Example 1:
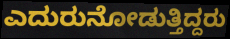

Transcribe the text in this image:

ಎದುರುನೋಡುತ್ತಿದ್ದರು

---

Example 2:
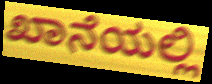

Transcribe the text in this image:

ಖಾನೆಯಲ್ಲಿ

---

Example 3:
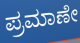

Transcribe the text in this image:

ಪ್ರಮಾಣೇ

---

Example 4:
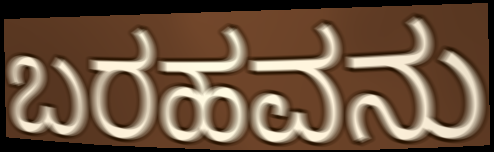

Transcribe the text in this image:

ಬರಹವನು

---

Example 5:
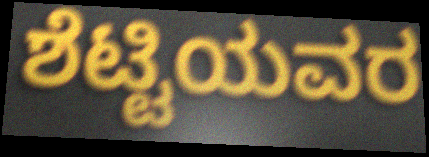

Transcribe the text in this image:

ಶೆಟ್ಟಿಯವರ